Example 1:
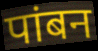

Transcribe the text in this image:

पांबन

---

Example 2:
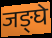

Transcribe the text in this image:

जङ्घे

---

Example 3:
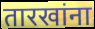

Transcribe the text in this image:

तारखांना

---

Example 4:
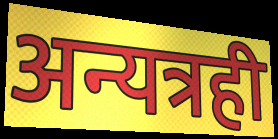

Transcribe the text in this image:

अन्यत्रही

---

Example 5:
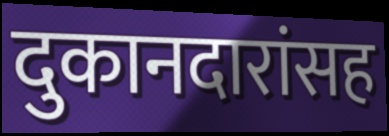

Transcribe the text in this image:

दुकानदारांसह